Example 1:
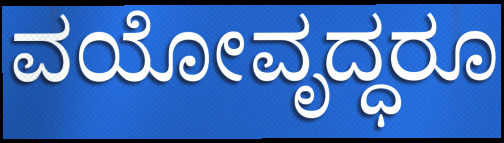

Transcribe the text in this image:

ವಯೋವೃದ್ಧರೂ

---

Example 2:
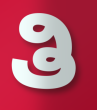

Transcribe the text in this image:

ತಿ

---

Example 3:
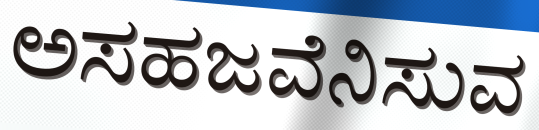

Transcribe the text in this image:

ಅಸಹಜವೆನಿಸುವ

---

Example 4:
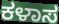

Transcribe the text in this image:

ಕಳಾಸ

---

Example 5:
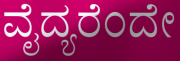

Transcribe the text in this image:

ವೈದ್ಯರೆಂದೇ